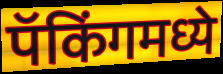
पॅकिंगमध्ये